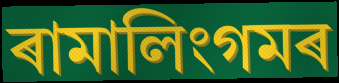
ৰামালিংগমৰ